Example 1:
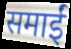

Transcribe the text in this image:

समाईं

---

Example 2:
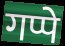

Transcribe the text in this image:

गप्पे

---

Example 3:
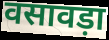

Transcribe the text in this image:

वसावड़ा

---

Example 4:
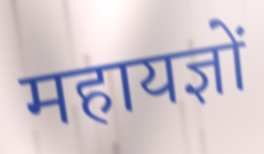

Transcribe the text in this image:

महायज्ञों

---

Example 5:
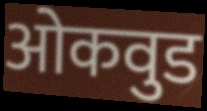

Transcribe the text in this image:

ओकवुड